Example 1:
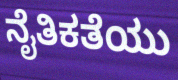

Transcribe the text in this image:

ನೈತಿಕತೆಯು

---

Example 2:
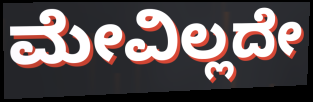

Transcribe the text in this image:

ಮೇವಿಲ್ಲದೇ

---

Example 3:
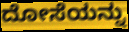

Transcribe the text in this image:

ದೋಸೆಯನ್ನು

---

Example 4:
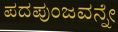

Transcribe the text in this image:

ಪದಪುಂಜವನ್ನೇ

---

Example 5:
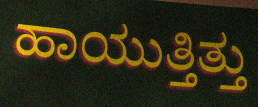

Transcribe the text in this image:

ಹಾಯುತ್ತಿತ್ತು